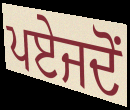
ਪਏਜਦੋਂ